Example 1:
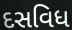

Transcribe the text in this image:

દસવિધ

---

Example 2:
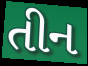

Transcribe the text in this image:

તીન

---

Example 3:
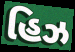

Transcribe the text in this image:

હિઝ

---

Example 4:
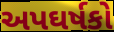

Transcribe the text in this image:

અપઘર્ષકો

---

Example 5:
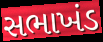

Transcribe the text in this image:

સભાખંડ